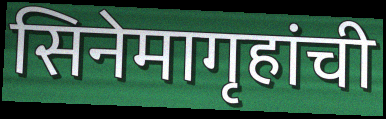
सिनेमागृहांची